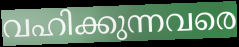
വഹിക്കുന്നവരെ